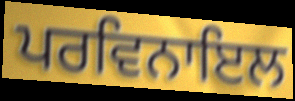
ਪਰਵਿਨਾਇਲ